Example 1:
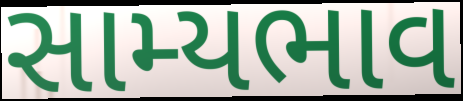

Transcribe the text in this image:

સામ્યભાવ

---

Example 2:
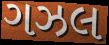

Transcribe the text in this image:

ગઝલ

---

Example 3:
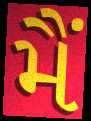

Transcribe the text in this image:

મૈં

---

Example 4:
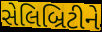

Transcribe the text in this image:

સેલિબ્રિટીને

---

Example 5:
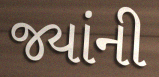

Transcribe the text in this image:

જ્યાંની